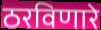
ठरविणारे